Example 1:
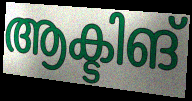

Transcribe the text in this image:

ആക്ടിങ്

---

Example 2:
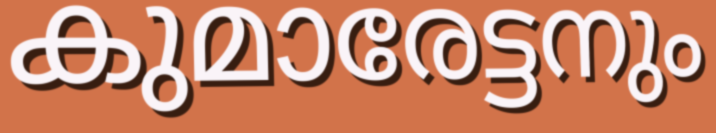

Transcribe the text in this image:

കുമാരേട്ടനും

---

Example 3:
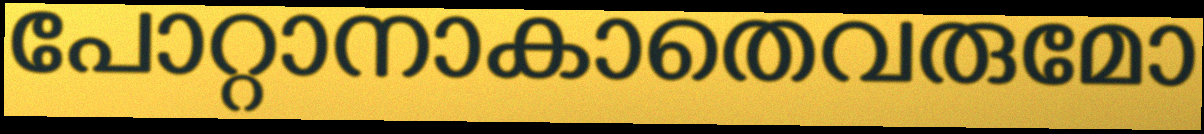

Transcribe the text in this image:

പോറ്റാനാകാതെവരുമോ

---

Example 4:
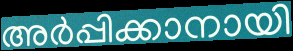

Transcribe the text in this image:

അർപ്പിക്കാനായി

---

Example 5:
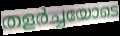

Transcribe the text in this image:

തളർച്ചയോടെ